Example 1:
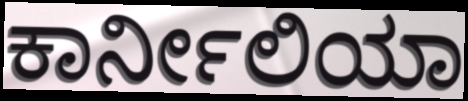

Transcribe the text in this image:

ಕಾರ್ನೀಲಿಯಾ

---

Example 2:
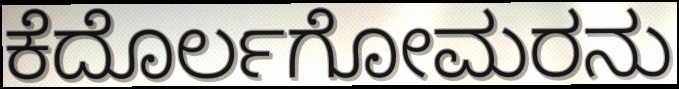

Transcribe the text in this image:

ಕೆದೊರ್ಲಗೋಮರನು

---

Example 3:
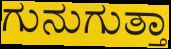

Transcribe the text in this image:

ಗುನುಗುತ್ತಾ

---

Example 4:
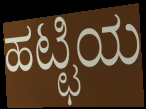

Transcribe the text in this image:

ಹಟ್ಟಿಯ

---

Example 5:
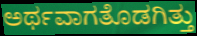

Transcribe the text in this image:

ಅರ್ಥವಾಗತೊಡಗಿತ್ತು